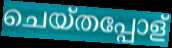
ചെയ്തപ്പോള്